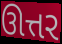
ઊત્તર